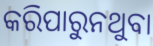
କରିପାରୁନଥୁବା